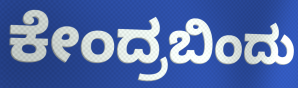
ಕೇಂದ್ರಬಿಂದು